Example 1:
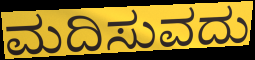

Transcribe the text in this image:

ಮದಿಸುವದು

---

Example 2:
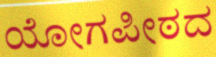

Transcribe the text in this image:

ಯೋಗಪೀಠದ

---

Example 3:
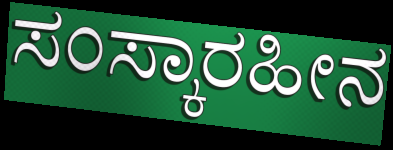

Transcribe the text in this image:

ಸಂಸ್ಕಾರಹೀನ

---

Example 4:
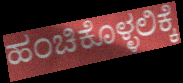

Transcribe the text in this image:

ಹಂಚಿಕೊಳ್ಳಲಿಕ್ಕೆ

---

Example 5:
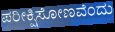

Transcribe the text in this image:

ಪರೀಕ್ಷಿಸೋಣವೆಂದು